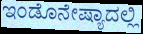
ಇಂಡೊನೇಷ್ಯಾದಲ್ಲಿ